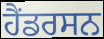
ਹੈਂਡਰਸਨ